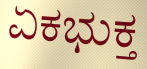
ಏಕಭುಕ್ತ